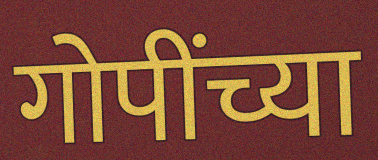
गोपींच्या